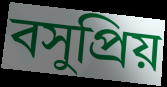
বসুপ্রিয়